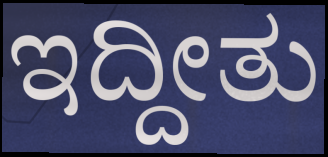
ಇದ್ದೀತು